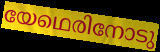
യേഥെരിനോടു